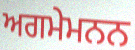
ਅਗਮੇਮਨਨ